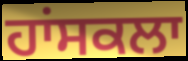
ਹਾਂਸਕਲਾ